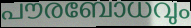
പൗരബോധവും